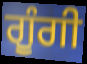
ਗੂੰਗੀ